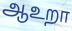
ஆஉறா